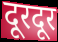
दूरदूर